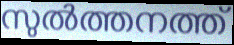
സുൽത്തനത്ത്